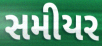
સમીયર